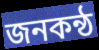
জনকন্ঠ